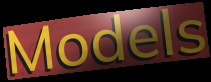
Models